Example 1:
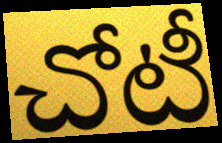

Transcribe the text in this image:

చోటీ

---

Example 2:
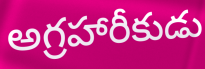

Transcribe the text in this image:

అగ్రహారీకుడు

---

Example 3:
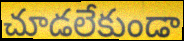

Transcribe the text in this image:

చూడలేకుండా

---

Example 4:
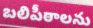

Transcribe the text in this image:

బలిపీఠాలను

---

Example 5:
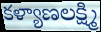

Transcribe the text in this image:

కళ్యాణలక్ష్మి